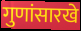
गुणांसारखे